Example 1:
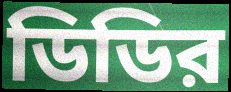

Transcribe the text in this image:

ডিডির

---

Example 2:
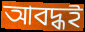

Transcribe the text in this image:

আবদ্ধই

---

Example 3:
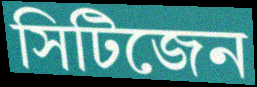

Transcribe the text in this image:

সিটিজেন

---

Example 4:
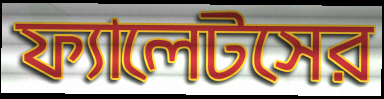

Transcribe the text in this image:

ফ্যালেটসের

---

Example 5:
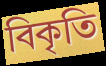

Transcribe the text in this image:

বিকৃতি